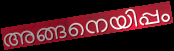
അങ്ങനെയിപ്പം